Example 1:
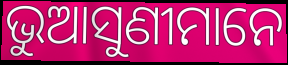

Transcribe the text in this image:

ଭୁଆସୁଣୀମାନେ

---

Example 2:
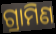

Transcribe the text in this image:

ଗ୍ରାମିଣ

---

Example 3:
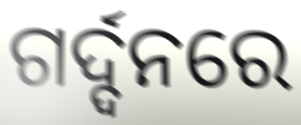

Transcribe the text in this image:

ଗର୍ଦ୍ଦନରେ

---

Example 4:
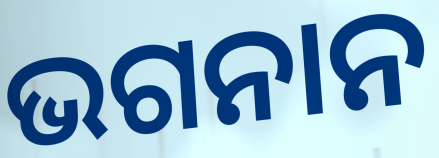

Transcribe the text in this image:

ଭଗନାନ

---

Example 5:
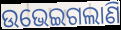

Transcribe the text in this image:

ଉଭେଇଗଲାଣି